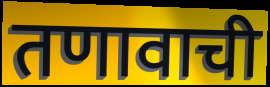
तणावाची